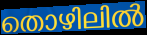
തൊഴിലിൽ